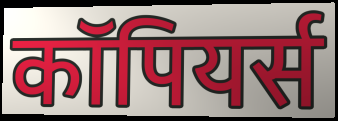
कॉपियर्स